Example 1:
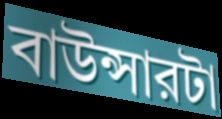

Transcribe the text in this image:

বাউন্সারটা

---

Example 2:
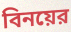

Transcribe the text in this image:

বিনয়ের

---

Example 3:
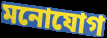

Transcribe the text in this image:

মনোযোগ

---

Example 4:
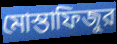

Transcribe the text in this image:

মোস্তাফিজুর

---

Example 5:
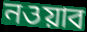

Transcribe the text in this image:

নওয়াব